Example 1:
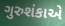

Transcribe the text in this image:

ગુરુશંકાએ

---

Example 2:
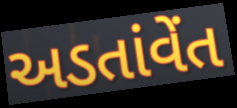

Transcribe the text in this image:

અડતાંવેંત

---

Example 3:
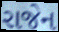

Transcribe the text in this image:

રાજેન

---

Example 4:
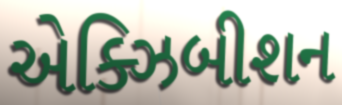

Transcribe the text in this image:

એક્ઝિબીશન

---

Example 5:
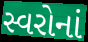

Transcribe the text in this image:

સ્વરોનાં